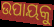
ଉପାୟକୁ